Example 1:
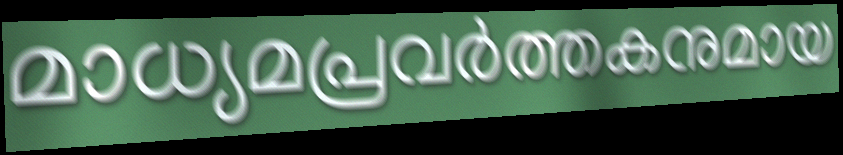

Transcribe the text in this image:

മാധ്യമപ്രവർത്തകനുമായ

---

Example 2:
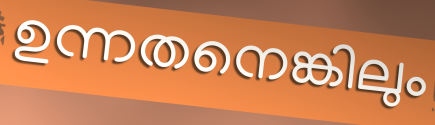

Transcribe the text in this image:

ഉന്നതനെങ്കിലും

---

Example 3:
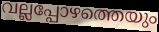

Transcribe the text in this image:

വല്ലപ്പോഴത്തെയും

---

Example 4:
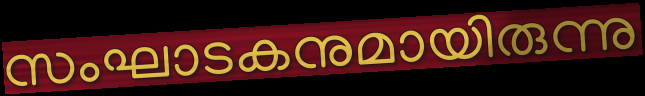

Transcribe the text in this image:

സംഘാടകനുമായിരുന്നു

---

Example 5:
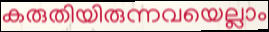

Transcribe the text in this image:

കരുതിയിരുന്നവയെല്ലാം